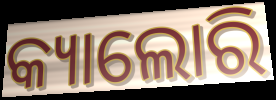
କ୍ୟାଲୋରି